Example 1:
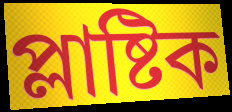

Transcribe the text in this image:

প্লাষ্টিক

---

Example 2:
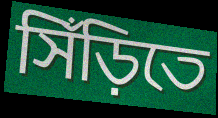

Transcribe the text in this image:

সিঁড়িতে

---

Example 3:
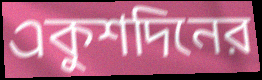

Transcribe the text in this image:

একুশদিনের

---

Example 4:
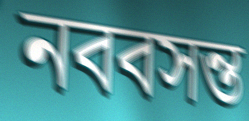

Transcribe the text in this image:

নববসন্ত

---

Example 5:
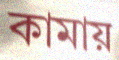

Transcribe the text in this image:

কামায়